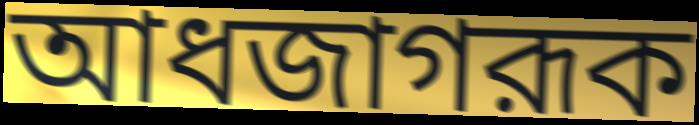
আধজাগরূক